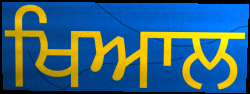
ਖਿਆਲ